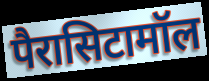
पैरासिटामॉल